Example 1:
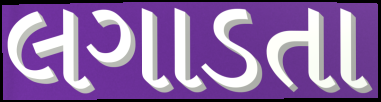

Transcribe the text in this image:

લગાડતા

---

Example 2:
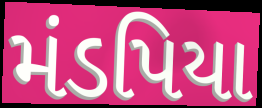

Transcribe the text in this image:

મંડપિયા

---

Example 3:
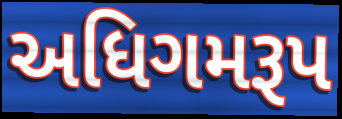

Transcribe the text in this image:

અધિગમરૂપ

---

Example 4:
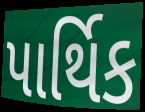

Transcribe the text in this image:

પાર્થિક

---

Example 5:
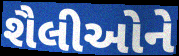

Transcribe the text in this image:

શૈલીઓને